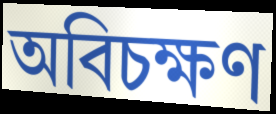
অবিচক্ষণ